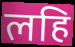
लहि